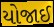
યોજાઈ